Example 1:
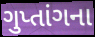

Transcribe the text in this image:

ગુપ્તાંગના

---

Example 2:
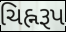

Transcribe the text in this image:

ચિહ્નરૂપ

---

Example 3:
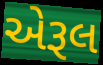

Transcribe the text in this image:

એરૂલ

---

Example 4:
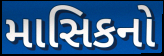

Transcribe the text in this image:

માસિકનો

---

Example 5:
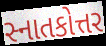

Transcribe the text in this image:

સ્નાતકોત્તર